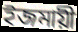
ইজমায়ী